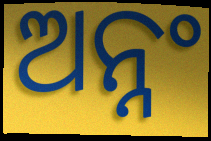
ଅନ୍ନଂ